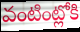
వంటింట్లోకి